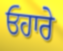
ਓਹਾਰੇ